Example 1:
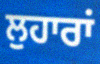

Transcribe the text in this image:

ਲੁਹਾਰਾਂ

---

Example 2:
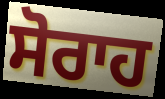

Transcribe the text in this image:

ਸੋਰਾਹ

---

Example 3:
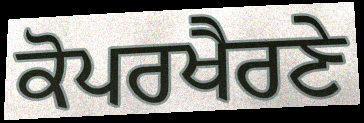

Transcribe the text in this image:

ਕੋਪਰਖੈਰਣੇ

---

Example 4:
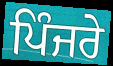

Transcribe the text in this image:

ਪਿੰਜਰੇ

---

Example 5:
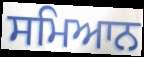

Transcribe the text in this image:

ਸਮਿਆਨ